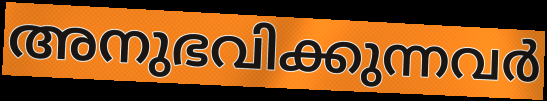
അനുഭവിക്കുന്നവർ